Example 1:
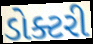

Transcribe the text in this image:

ડોક્ટરી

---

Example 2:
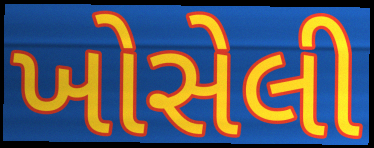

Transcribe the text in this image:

ખોસેલી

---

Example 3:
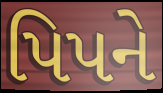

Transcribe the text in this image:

પિપને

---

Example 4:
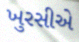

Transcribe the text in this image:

ખુરસીએ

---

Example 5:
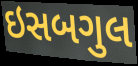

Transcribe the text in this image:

ઇસબગુલ